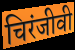
चिरंजीवी